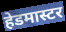
हेडमास्टर